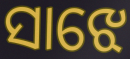
ସାଝେ